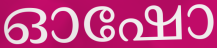
ഓഷോ